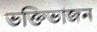
ভক্তিভাজন